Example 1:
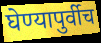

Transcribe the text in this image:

घेण्यापुर्वीच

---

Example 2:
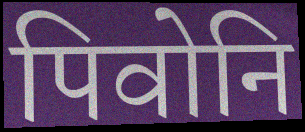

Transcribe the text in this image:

पिवोनि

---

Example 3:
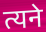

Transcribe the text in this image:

त्यने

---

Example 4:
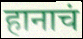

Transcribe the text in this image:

हानाचं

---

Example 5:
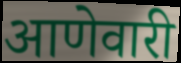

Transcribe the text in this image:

आणेवारी